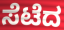
ಸೆಟೆದ